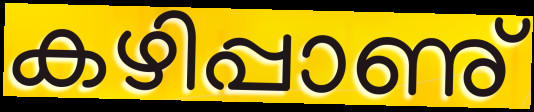
കഴിപ്പാണു്